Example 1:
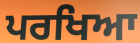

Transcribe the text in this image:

ਪਰਖਿਆ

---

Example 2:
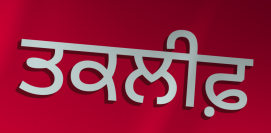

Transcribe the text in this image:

ਤਕਲੀਫ਼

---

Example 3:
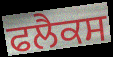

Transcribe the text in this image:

ਫਲੈਕਸ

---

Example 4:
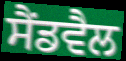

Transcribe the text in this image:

ਸੈਂਡਵੈਲ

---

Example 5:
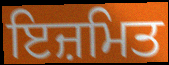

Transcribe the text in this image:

ਇਜ਼ਮਿਤ